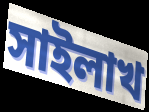
সাইলাখ